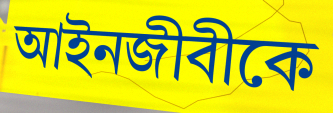
আইনজীবীকে